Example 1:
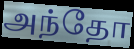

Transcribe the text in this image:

அந்தோ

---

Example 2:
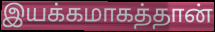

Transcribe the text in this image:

இயக்கமாகத்தான்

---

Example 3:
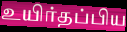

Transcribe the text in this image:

உயிர்தப்பிய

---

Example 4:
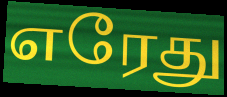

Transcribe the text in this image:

எரேது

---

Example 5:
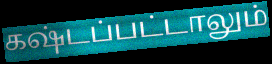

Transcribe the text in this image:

கஷ்டப்பட்டாலும்